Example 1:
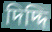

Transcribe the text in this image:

দিদ্দি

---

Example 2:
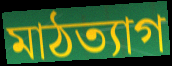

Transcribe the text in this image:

মাঠত্যাগ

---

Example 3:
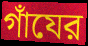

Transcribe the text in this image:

গাঁযের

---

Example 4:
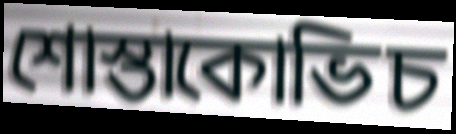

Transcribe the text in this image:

শোস্তাকোভিচ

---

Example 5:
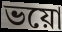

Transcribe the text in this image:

ভয়ো